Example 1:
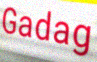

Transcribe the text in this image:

Gadag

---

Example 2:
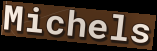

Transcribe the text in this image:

Michels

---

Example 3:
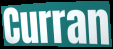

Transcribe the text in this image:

Curran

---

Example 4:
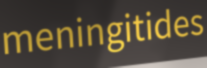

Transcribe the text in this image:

meningitides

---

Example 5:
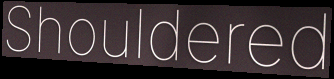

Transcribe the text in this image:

Shouldered